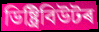
ডিষ্ট্ৰিবিউটৰ